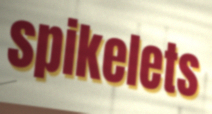
spikelets